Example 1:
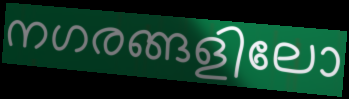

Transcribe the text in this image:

നഗരങ്ങളിലോ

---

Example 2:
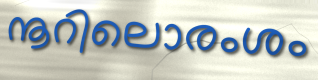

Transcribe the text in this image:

നൂറിലൊരംശം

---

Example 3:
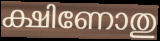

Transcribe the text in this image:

ക്ഷിണോതു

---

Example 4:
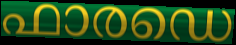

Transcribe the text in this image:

ഫാരഡെ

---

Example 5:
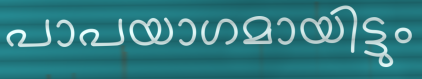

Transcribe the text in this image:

പാപയാഗമായിട്ടും